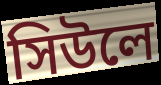
সিউলে